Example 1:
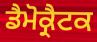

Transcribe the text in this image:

ਡੈਮੋਕ੍ਰੈਟਕ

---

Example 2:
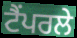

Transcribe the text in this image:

ਟੈਂਪਰਲੇ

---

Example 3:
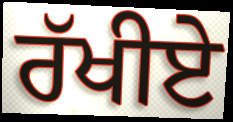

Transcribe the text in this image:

ਰੱਖੀਏ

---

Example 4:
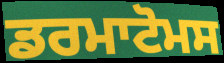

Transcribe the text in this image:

ਡਰਮਾਟੋਮਸ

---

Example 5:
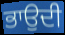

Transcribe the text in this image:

ਭਾਉਦੀ